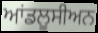
ਆਂਡਲੂਸੀਅਨ